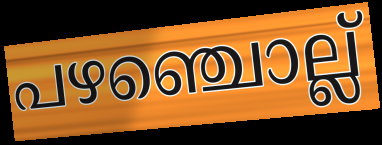
പഴഞ്ചൊല്ല്